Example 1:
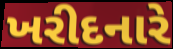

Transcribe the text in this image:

ખરીદનારે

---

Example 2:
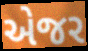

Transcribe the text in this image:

એજર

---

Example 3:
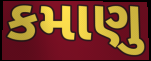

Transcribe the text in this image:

કમાણુ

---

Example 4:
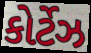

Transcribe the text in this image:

કોર્ટેઝ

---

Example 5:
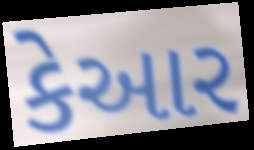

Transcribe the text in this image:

કેઆર